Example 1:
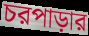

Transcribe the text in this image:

চরপাড়ার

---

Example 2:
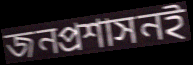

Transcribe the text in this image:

জনপ্রশাসনই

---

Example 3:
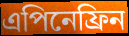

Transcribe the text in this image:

এপিনেফ্রিন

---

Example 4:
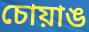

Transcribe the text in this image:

চোয়াঙ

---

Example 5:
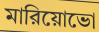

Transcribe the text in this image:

মারিয়োভো